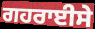
ਗਹਰਾਈਸੇ